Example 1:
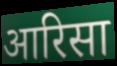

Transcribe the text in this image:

आरिसा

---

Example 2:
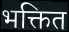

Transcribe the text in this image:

भक्तित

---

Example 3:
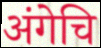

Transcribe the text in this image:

अंगेचि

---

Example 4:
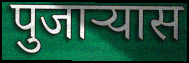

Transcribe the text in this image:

पुजाऱ्यास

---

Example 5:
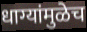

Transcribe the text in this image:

धाग्यांमुळेच